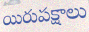
యిరుపక్షాలు